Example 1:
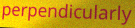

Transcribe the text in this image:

perpendicularly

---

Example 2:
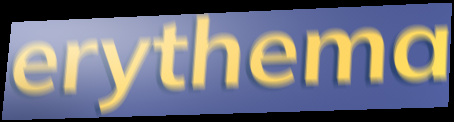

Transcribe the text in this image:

erythema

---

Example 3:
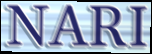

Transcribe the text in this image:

NARI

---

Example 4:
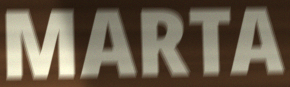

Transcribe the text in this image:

MARTA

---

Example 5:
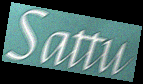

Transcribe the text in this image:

Sattu